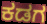
ಕಡಗ